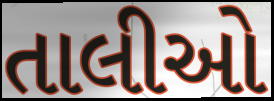
તાલીઓ